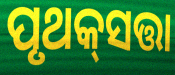
ପୃଥକ୍‌ସତ୍ତା